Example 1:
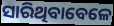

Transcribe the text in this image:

ସାରିଥିବାବେଳେ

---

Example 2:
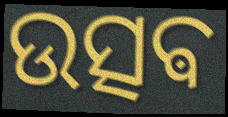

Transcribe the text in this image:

ଉତ୍ସଵ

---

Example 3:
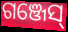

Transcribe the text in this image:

ଗଞ୍ଜେସ୍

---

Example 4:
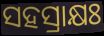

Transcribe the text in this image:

ସହସ୍ରାକ୍ଷଃ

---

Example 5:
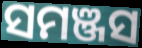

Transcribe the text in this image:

ସମଞ୍ଜସ